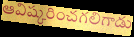
ఆవిష్కరించగలిగాడు